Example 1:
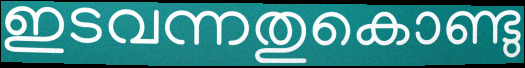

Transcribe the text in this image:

ഇടവന്നതുകൊണ്ടു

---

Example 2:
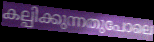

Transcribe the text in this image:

കല്പിക്കുന്നതുപോലെ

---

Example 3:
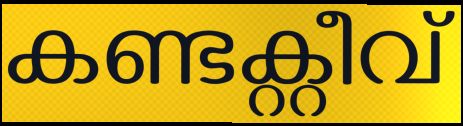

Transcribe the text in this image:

കണ്ടക്റ്റീവ്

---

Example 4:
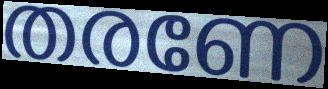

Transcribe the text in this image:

തരണേ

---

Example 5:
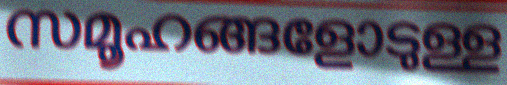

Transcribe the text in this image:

സമൂഹങ്ങളോടുള്ള